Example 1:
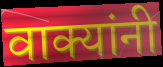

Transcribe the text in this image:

वाक्यांनी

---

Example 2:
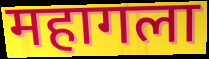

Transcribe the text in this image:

महागला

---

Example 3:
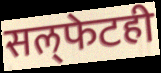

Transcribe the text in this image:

सल्फेटही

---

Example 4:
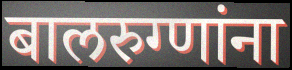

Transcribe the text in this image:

बालरुग्णांना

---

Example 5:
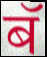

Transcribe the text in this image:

बॅ